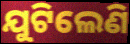
ଯୁଟିଲେଣି